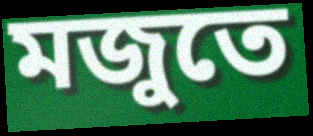
মজুতে